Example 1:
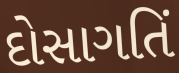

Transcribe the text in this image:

દોસાગતિં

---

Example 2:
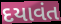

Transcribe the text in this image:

દયાવંત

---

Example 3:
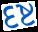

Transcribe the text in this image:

દષ્ટ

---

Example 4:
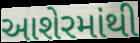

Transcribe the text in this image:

આશેરમાંથી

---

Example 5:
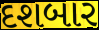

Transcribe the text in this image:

દશબાર